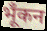
भूँकन